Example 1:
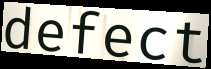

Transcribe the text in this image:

defect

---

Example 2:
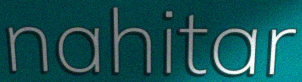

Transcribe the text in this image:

nahitar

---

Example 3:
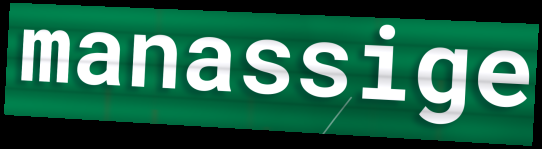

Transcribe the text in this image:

manassige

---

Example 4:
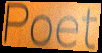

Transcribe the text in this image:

Poet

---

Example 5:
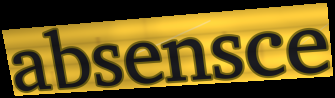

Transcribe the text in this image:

absensce